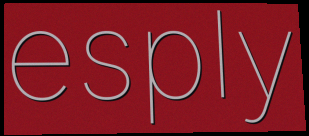
esply